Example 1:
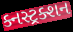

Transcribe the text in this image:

ક્નસ્ટ્રક્શન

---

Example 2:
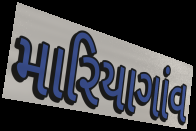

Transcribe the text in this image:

મારિયાગાંવ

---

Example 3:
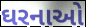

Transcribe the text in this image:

ઘરનાઓ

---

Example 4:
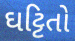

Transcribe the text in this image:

ઘટ્ટિતો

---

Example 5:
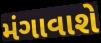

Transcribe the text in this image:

મંગાવાશે